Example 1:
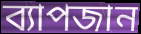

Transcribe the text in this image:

ব্যাপজান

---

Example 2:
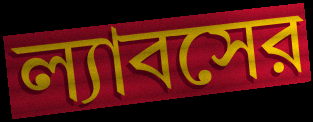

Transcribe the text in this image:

ল্যাবসের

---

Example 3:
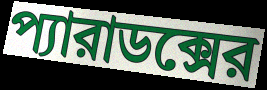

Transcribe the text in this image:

প্যারাডক্সের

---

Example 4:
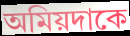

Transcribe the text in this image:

অমিয়দাকে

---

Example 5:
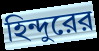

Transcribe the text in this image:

হিন্দুরের